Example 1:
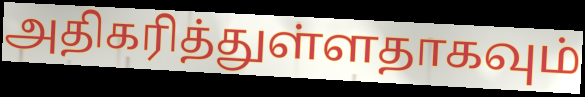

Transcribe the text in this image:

அதிகரித்துள்ளதாகவும்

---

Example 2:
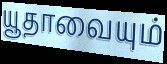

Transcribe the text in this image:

யூதாவையும்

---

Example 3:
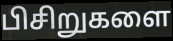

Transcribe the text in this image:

பிசிறுகளை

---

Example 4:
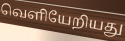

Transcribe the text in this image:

வெளியேறியது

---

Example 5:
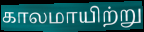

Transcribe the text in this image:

காலமாயிற்று